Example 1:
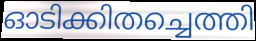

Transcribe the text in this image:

ഓടിക്കിതച്ചെത്തി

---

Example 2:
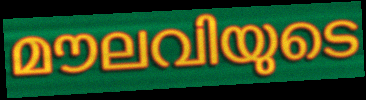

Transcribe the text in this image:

മൗലവിയുടെ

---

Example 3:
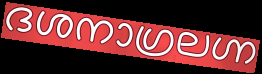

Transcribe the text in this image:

ദശനാഗ്രലഗ്ന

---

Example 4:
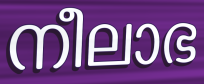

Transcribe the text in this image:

നീലാഭ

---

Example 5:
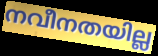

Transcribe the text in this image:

നവീനതയില്ല